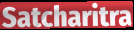
Satcharitra